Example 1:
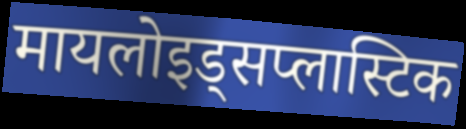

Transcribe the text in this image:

मायलोइड्सप्लास्टिक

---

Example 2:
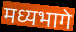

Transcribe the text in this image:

मध्यभागे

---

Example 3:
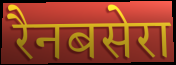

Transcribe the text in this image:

रैनबसेरा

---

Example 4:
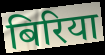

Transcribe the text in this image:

बिरिया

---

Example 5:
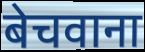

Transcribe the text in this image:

बेचवाना